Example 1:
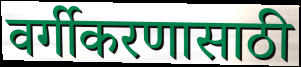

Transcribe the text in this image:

वर्गीकरणासाठी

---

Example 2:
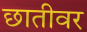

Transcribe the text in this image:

छातीवर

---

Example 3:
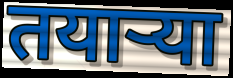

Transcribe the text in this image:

तयाऱ्या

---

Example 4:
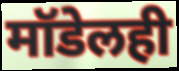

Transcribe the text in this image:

मॉडेलही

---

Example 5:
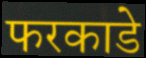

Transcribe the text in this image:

फरकाडे